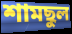
শামছুল